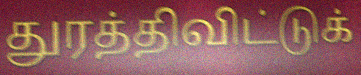
துரத்திவிட்டுக்